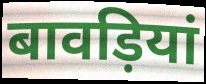
बावड़ियां